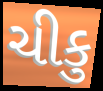
ચીકુ